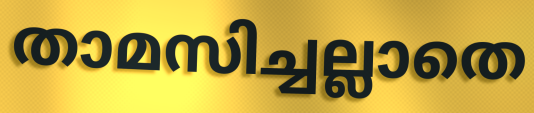
താമസിച്ചല്ലാതെ